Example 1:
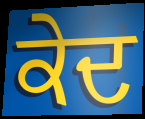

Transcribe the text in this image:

ਕੇਦ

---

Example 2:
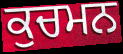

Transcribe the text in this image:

ਕੁਚਮਨ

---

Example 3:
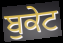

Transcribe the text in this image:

ਬੁਕੇਟ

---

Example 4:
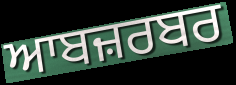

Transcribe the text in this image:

ਆਬਜ਼ਰਬਰ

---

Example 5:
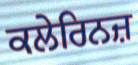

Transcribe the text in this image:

ਕਲੇਰਿਨਜ਼